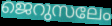
ജെറുസലേം